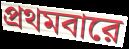
প্রথমবারে